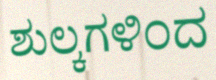
ಶುಲ್ಕಗಳಿಂದ